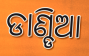
ଡାଣ୍ଡିଆ